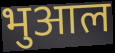
भुआल